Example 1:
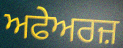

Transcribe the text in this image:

ਅਫੇਅਰਜ਼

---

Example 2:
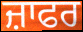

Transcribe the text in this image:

ਜ਼ਾਫਰ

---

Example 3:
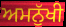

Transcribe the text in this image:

ਅਮਨੁੱਖੀ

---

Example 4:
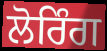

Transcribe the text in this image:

ਲੋਰਿੰਗ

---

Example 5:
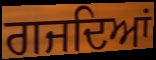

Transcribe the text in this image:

ਗਜਦਿਆਂ